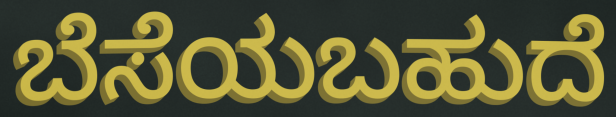
ಬೆಸೆಯಬಹುದೆ